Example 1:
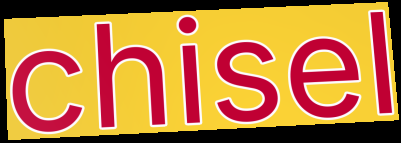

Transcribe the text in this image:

chisel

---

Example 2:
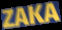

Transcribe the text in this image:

ZAKA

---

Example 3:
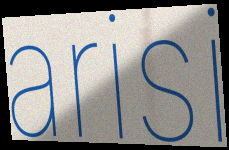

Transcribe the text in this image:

arisi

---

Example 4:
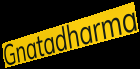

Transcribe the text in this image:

Gnatadharma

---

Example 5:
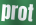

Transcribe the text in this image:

prot